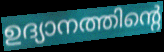
ഉദ്യാനത്തിന്റെ